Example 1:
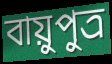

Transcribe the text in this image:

বায়ুপুত্র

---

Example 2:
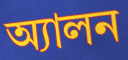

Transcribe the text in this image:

অ্যালন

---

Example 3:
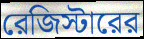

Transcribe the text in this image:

রেজিস্টারের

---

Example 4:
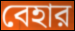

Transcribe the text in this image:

বেহার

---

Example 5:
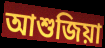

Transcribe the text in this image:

আশুজিয়া